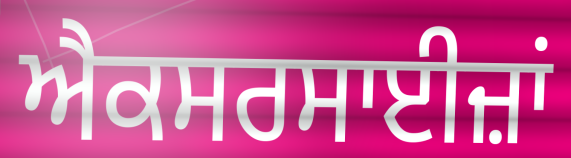
ਐਕਸਰਸਾਈਜ਼ਾਂ